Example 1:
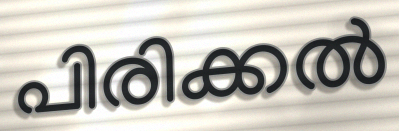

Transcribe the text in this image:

പിരിക്കൽ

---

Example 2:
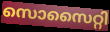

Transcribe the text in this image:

സൊസൈറ്റി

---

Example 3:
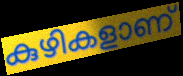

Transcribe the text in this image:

കുഴികളാണ്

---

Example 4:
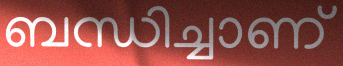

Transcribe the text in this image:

ബന്ധിച്ചാണ്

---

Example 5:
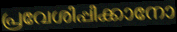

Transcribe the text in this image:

പ്രവേശിപ്പിക്കാനോ